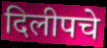
दिलीपचे